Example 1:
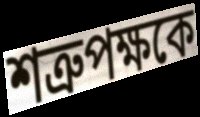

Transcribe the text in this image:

শত্রুপক্ষকে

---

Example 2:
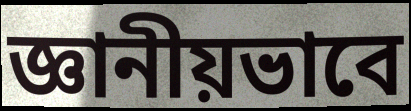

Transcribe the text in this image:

জ্ঞানীয়ভাবে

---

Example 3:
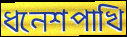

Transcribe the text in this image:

ধনেশপাখি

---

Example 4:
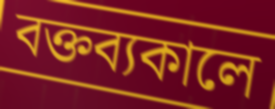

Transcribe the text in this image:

বক্তব্যকালে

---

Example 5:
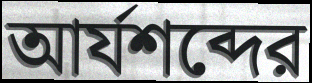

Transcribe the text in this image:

আর্যশব্দের